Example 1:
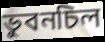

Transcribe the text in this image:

ভুবনচিল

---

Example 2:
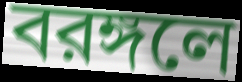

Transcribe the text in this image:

বরঙ্গলে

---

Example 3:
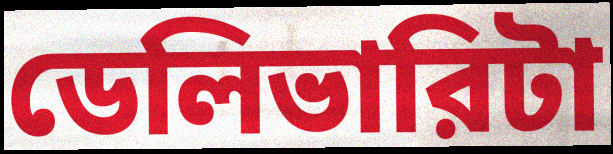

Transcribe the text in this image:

ডেলিভারিটা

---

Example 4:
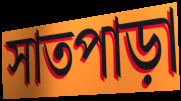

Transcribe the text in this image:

সাতপাড়া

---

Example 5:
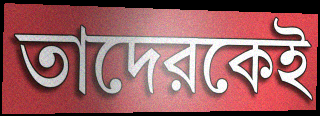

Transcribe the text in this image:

তাদেরকেই